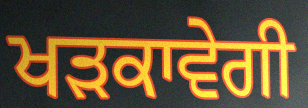
ਖੜਕਾਵੇਗੀ